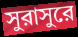
সুরাসুরে